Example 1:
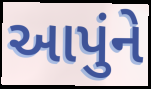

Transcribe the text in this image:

આપુંને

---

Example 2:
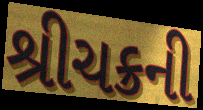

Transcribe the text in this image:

શ્રીચક્રની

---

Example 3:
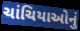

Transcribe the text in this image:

ચાંચિયાઓનું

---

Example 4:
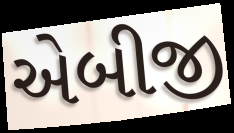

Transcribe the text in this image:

એબીજી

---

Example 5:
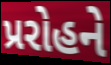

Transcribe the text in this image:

પ્રરોહને